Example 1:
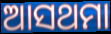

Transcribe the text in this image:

ଆସଥମା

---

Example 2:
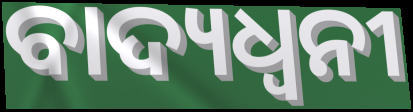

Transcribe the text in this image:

ବାଦ୍ୟଧ୍ୱନୀ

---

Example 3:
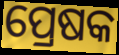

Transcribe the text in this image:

ପ୍ରେଷକ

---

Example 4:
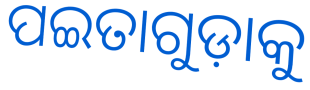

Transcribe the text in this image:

ପଇତାଗୁଡ଼ାକୁ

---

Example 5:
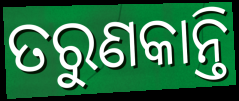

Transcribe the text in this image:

ତରୁଣକାନ୍ତି